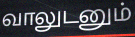
வாலுடனும்